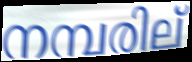
നമ്പരില്